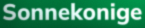
Sonnekonige